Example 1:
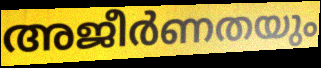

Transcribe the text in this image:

അജീർണതയും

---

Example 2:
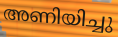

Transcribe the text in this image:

അണിയിച്ചു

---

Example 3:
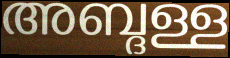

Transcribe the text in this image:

അബ്ദള്ള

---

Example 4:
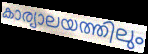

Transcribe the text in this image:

കാര്യാലയത്തിലും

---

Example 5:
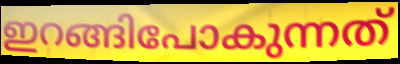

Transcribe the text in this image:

ഇറങ്ങിപോകുന്നത്